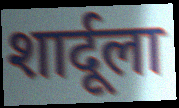
शार्दूला